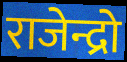
राजेन्द्रो